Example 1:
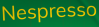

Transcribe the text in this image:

Nespresso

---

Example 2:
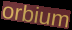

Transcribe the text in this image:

orbium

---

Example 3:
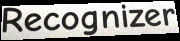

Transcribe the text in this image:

Recognizer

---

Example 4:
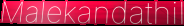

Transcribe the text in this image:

Malekandathil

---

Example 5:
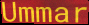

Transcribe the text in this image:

Ummar